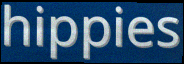
hippies